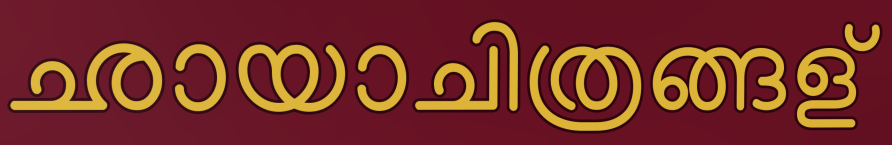
ഛായാചിത്രങ്ങള്